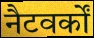
नैटवर्कों